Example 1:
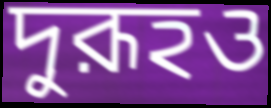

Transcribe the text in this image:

দুরূহও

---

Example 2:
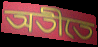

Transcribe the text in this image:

অতীতে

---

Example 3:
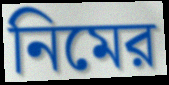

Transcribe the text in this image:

নিমের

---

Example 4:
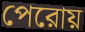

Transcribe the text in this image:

পেরোয়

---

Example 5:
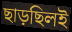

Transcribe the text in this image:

ছাড়ছিলই